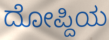
ದೋಪ್ದಿಯ